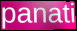
panati